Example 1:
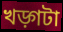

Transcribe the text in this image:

খড়্গটা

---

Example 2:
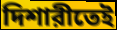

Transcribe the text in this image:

দিশারীতেই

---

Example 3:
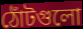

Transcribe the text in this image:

ঠোঁটগুলো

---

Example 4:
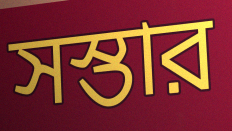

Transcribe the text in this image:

সস্তার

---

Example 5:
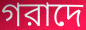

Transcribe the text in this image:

গরাদে